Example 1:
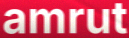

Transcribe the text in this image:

amrut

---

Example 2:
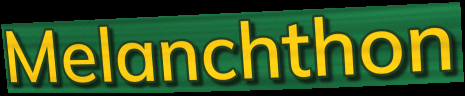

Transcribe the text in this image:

Melanchthon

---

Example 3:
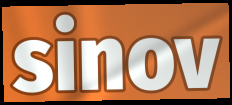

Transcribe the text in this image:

sinov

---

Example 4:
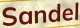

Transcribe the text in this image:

Sandel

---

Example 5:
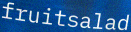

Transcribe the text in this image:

fruitsalad